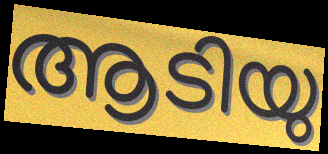
ആടിയു